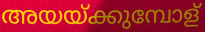
അയയ്ക്കുമ്പോള്